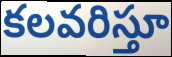
కలవరిస్తూ